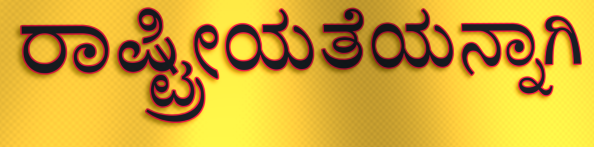
ರಾಷ್ಟ್ರೀಯತೆಯನ್ನಾಗಿ